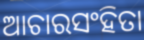
ଆଚାରସଂହିତା